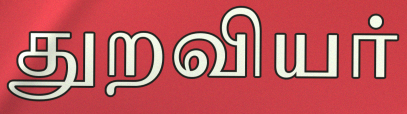
துறவியர்